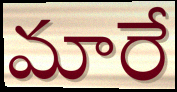
మారే